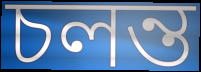
চলন্ত